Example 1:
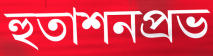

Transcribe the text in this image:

হুতাশনপ্রভ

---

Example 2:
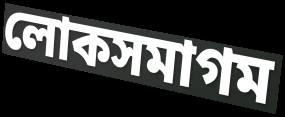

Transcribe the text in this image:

লোকসমাগম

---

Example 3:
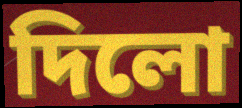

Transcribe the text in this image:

দিলো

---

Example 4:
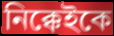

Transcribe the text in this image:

নিক্কেইকে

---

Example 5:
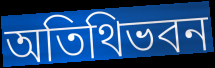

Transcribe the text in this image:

অতিথিভবন